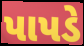
પાપડે